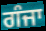
ਗੰਜਾ